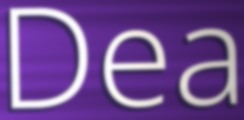
Dea